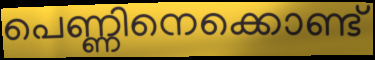
പെണ്ണിനെക്കൊണ്ട്